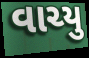
વાચ્યુ